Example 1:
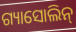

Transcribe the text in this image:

ଗ୍ୟାସୋଲିନ୍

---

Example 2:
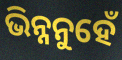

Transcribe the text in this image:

ଭିନ୍ନନୁହେଁ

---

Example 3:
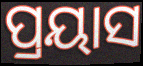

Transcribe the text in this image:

ପ୍ରୟାସ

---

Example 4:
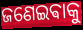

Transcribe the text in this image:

ଜଣେଇଵାକୁ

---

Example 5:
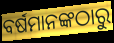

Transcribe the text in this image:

ବର୍ଷମାନଙ୍କଠାରୁ